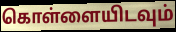
கொள்ளையிடவும்